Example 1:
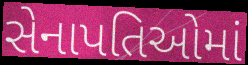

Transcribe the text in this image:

સેનાપતિઓમાં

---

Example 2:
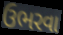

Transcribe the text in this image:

ઉભરવા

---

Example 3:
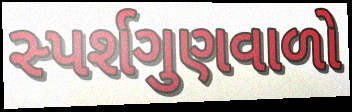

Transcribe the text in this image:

સ્પર્શગુણવાળો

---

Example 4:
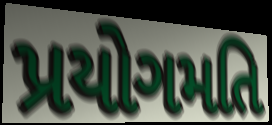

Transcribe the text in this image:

પ્રયોગમતિ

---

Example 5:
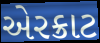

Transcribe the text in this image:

એરક્રાટ